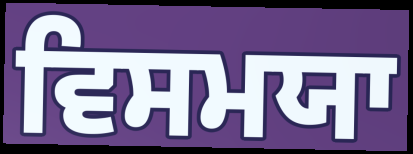
ਵਿਸਮਯਾ